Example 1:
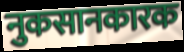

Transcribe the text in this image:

नुकसानकारक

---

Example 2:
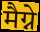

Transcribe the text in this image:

मैग्ने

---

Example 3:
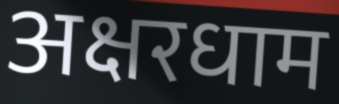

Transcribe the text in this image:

अक्षरधाम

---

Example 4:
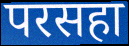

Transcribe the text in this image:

परसहा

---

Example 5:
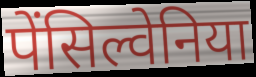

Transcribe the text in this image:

पेंसिल्वेनिया